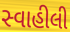
સ્વાહીલી